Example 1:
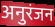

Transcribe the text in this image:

अनुरंजन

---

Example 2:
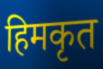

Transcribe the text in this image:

हिमकृत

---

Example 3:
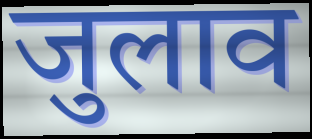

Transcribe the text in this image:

जुलाव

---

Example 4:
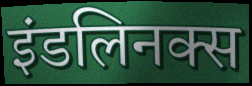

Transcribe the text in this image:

इंडलिनक्स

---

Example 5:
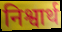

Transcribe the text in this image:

निश्वार्थ